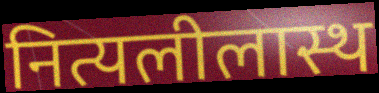
नित्यलीलास्थ